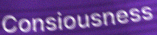
Consiousness